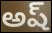
అష్